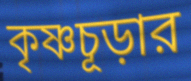
কৃষ্ণচূড়ার